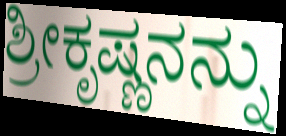
ಶ್ರೀಕೃಷ್ಣನನ್ನು